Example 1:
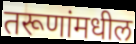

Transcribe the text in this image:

तरूणांमधील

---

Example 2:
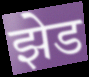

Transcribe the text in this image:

झेड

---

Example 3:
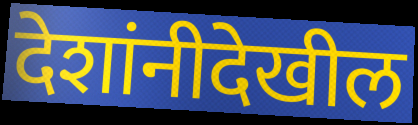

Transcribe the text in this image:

देशांनीदेखील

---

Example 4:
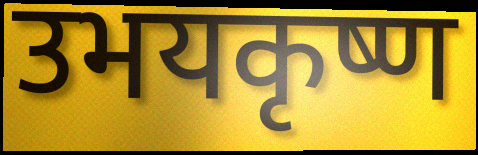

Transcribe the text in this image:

उभयकृष्ण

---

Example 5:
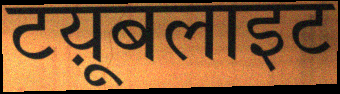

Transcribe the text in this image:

टय़ूबलाइट